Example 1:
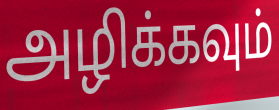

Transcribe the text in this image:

அழிக்கவும்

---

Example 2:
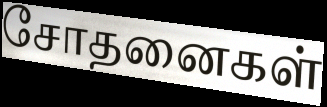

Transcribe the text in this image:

சோதனைகள்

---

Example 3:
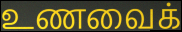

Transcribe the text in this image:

உணவைக்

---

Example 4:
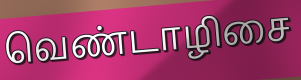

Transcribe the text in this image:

வெண்டாழிசை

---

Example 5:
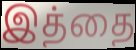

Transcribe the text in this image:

இத்தை